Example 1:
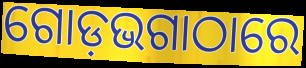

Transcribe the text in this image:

ଗୋଡ଼ଭଗାଠାରେ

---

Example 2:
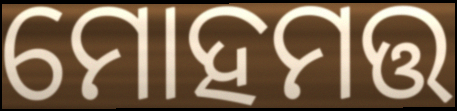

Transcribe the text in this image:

ମୋହମତ୍ତ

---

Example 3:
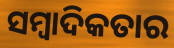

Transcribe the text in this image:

ସମ୍ୱାଦିକତାର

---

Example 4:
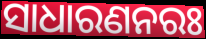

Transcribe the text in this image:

ସାଧାରଣନରଃ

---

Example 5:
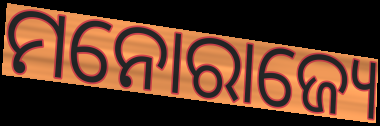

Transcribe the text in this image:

ମନୋରାଜ୍ୟେ